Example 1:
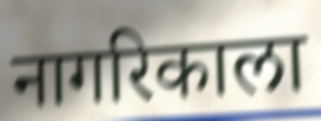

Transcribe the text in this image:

नागरिकाला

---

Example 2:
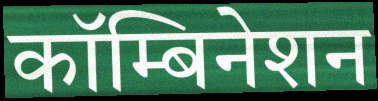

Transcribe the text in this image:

कॉम्बिनेशन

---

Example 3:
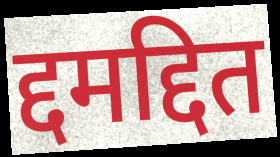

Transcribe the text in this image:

द्दमद्दित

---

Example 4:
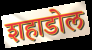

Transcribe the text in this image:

शहाडोल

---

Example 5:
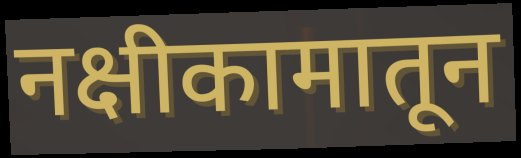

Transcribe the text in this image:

नक्षीकामातून